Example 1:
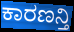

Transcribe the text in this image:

ಕಾರಣನ್ತಿ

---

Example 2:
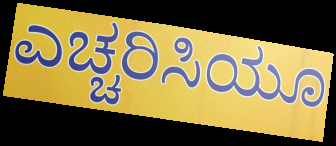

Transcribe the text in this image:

ಎಚ್ಚರಿಸಿಯೂ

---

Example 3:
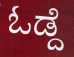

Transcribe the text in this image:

ಓಡ್ದೆ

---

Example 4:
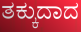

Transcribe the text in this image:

ತಕ್ಕುದಾದ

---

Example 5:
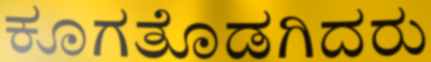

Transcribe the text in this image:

ಕೂಗತೊಡಗಿದರು